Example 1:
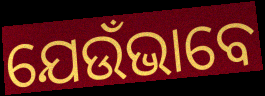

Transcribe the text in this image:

ଯେଉଁଭାବେ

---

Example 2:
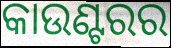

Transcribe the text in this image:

କାଉଣ୍ଟରର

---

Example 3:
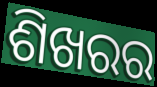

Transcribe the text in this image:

ଶିଖରର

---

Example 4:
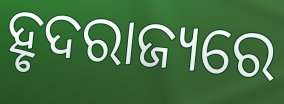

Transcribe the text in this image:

ହୃଦରାଜ୍ୟରେ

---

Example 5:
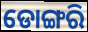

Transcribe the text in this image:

ଡୋଙ୍ଗରି